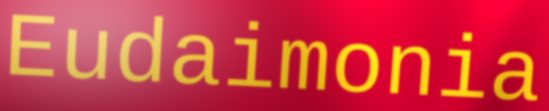
Eudaimonia